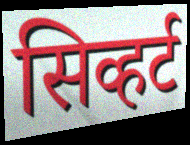
सिव्हर्ट